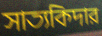
সাত্যকিদার